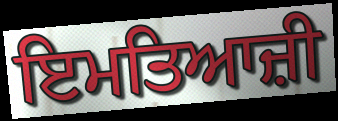
ਇਮਤਿਆਜ਼ੀ